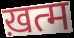
ख़त्‍म